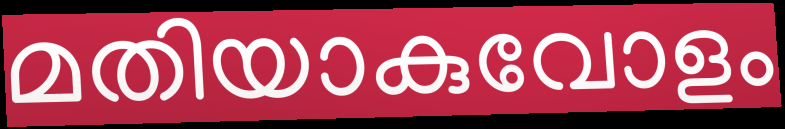
മതിയാകുവോളം